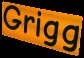
Grigg